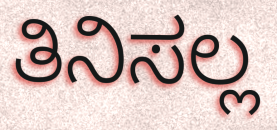
ತಿನಿಸಲ್ಲ